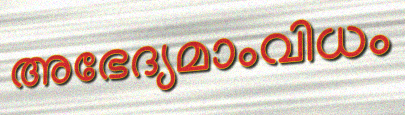
അഭേദ്യമാംവിധം